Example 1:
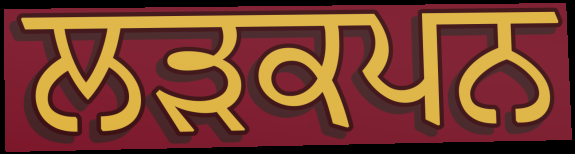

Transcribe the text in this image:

ਲੜਕਪਨ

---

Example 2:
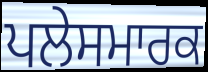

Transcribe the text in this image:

ਪਲੇਸਮਾਰਕ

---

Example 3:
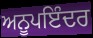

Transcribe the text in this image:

ਅਨੂਪਇੰਦਰ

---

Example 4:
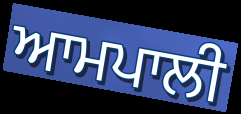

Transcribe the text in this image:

ਆਮਪਾਲੀ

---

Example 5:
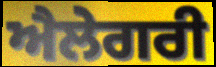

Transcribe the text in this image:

ਐਲੇਗਰੀ